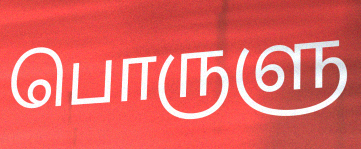
பொருளு